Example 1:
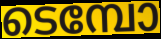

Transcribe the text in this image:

ടെമ്പോ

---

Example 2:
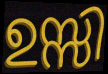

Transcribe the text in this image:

ഉസ്സി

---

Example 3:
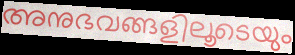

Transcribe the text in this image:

അനുഭവങ്ങളിലൂടെയും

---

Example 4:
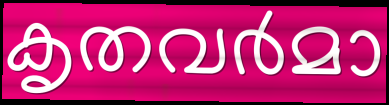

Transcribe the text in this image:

കൃതവർമാ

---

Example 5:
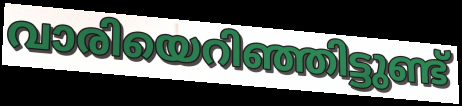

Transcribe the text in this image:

വാരിയെറിഞ്ഞിട്ടുണ്ട്